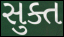
સુક્ત